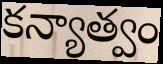
కన్యాత్వం